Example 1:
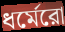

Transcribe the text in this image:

ধর্মেরো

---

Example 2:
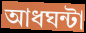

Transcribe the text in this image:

আধঘন্টা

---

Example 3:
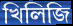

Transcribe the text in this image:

খিলিজি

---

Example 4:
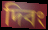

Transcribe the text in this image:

দিবং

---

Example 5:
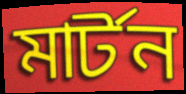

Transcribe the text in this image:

মার্টন